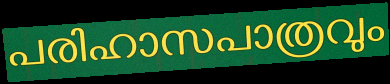
പരിഹാസപാത്രവും